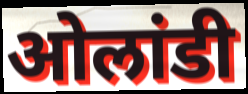
ओलांडी